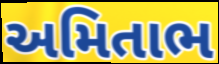
અમિતાભ